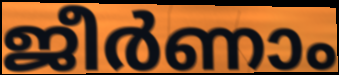
ജീർണാം